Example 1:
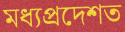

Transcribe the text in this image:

মধ্যপ্ৰদেশত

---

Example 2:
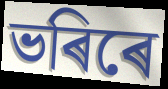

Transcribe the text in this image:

ভৰিৰে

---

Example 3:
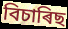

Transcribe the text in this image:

বিচাৰিছ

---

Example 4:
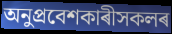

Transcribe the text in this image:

অনুপ্ৰবেশকাৰীসকলৰ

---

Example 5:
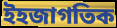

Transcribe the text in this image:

ইহজাগতিক